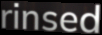
rinsed